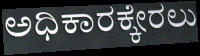
ಅಧಿಕಾರಕ್ಕೇರಲು